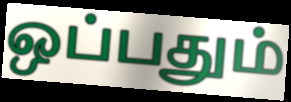
ஒப்பதும்